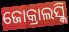
ଜୋକ୍ରାଲସ୍କି